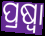
ପ୍ରଷ୍ୱା